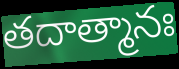
తదాత్మానః